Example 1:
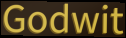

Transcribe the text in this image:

Godwit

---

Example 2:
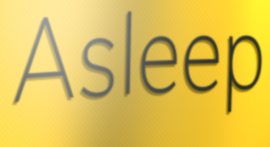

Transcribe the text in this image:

Asleep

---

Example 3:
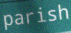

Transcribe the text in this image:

parish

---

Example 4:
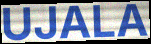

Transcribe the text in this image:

UJALA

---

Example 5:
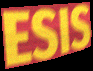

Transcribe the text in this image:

ESIS